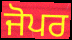
ਜੋਪਰ